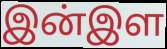
இன்இள